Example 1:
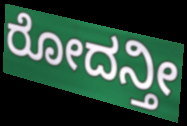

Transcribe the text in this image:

ರೋದನ್ತೀ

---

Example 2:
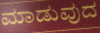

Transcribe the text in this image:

ಮಾಡುವುದ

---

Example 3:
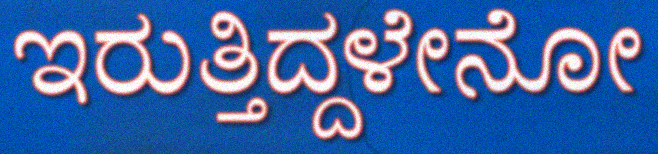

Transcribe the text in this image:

ಇರುತ್ತಿದ್ದಳೇನೋ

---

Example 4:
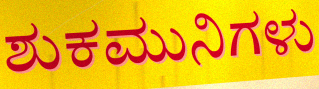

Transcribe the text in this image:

ಶುಕಮುನಿಗಳು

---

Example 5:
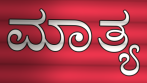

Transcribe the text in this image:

ಮಾತ್ಯ